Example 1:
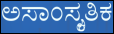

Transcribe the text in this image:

ಅಸಾಂಸ್ಕೃತಿಕ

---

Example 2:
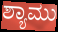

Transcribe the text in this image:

ಶ್ಯಾಮು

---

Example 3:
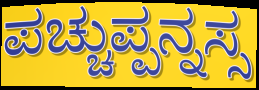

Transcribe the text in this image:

ಪಚ್ಚುಪ್ಪನ್ನಸ್ಸ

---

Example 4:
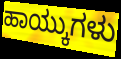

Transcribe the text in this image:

ಹಾಯ್ಕುಗಳು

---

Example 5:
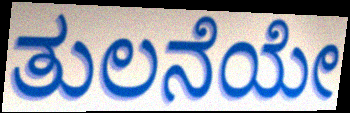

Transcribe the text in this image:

ತುಲನೆಯೇ